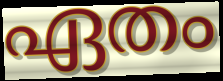
ഏതം